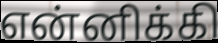
என்னிக்கி